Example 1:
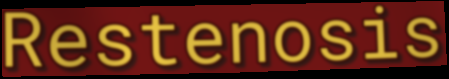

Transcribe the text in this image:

Restenosis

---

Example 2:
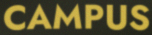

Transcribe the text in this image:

CAMPUS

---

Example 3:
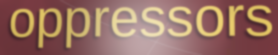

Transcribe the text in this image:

oppressors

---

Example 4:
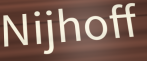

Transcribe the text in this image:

Nijhoff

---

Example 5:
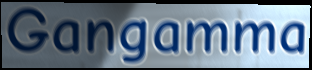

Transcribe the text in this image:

Gangamma